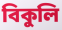
বিকুলি